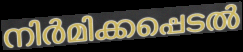
നിർമിക്കപ്പെടൽ